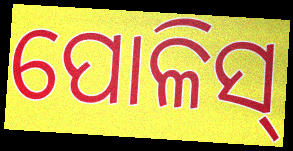
ପୋଳିସ୍